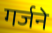
गर्जने